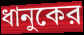
ধানুকের